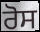
ਰੋਸ